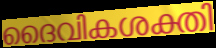
ദൈവികശക്തി